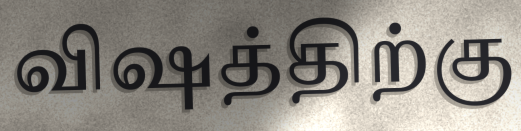
விஷத்திற்கு